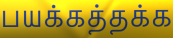
பயக்கத்தக்க